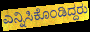
ಎನ್ನಿಸಿಕೊಂಡಿದ್ದರು